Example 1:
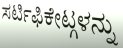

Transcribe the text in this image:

ಸರ್ಟಿಫಿಕೇಟ್ಗಳನ್ನು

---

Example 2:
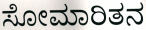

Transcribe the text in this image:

ಸೋಮಾರಿತನ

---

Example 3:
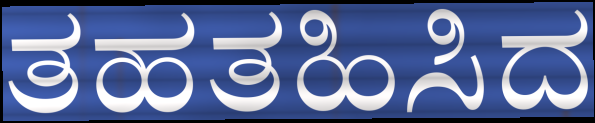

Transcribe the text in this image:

ತಹತಹಿಸಿದ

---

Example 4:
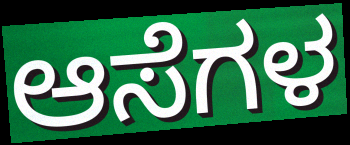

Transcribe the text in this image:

ಆಸೆಗಳ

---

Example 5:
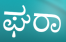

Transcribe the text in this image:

ಘರಾ